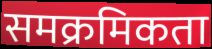
समक्रमिकता